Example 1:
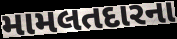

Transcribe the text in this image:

મામલતદારના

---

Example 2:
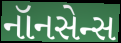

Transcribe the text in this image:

નૉનસેન્સ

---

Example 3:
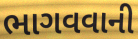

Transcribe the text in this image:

ભાગવવાની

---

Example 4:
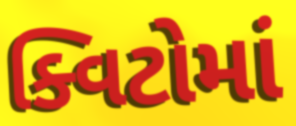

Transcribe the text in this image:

ક્વિટોમાં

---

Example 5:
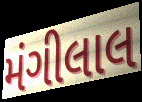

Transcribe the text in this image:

મંગીલાલ